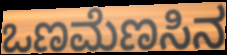
ಒಣಮೆಣಸಿನ